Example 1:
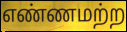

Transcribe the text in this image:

எண்ணமற்ற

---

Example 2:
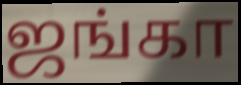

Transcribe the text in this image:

ஜங்கா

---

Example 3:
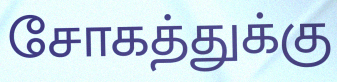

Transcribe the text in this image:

சோகத்துக்கு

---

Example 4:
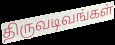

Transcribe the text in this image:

திருவடிவங்கள்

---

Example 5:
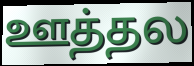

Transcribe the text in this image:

ஊத்தல